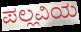
ಪಲ್ಲವಿಯ